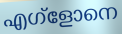
എഗ്ളോനെ